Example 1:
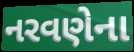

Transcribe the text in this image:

નરવણેના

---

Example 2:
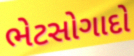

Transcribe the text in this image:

ભેટસોગાદો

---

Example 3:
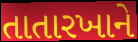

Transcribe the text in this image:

તાતારખાને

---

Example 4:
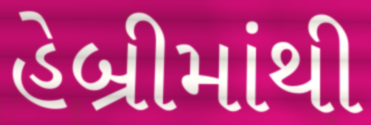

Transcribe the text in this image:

હેબ્રીમાંથી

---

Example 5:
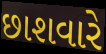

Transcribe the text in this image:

છાશવારે